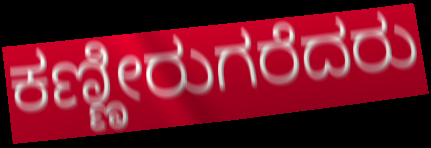
ಕಣ್ಣೀರುಗರೆದರು